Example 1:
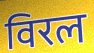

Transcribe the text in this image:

विरल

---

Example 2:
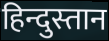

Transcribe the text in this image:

हिन्‍दुस्‍तान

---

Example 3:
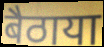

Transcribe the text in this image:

बैठाया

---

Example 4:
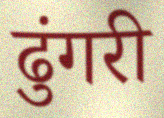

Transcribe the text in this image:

ढुंगरी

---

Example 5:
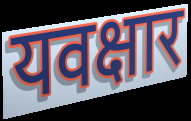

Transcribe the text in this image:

यवक्षार